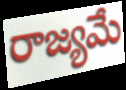
రాజ్యమే